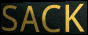
SACK